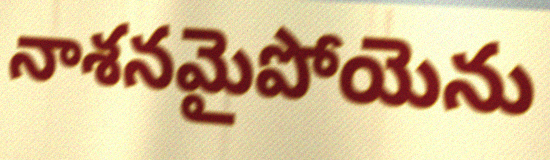
నాశనమైపోయెను